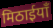
मिठाईयाँ